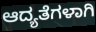
ಆದ್ಯತೆಗಳಾಗಿ